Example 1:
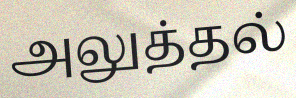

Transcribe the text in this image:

அலுத்தல்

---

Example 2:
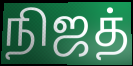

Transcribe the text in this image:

நிஜத்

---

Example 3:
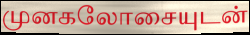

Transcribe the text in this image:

முனகலோசையுடன்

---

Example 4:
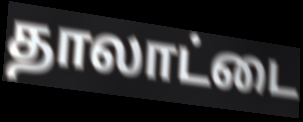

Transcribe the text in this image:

தாலாட்டை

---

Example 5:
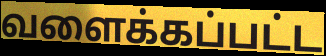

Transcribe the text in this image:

வளைக்கப்பட்ட